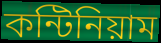
কন্টিনিয়াম